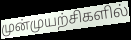
முன்முயற்சிகளில்